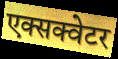
एक्सक्वेटर